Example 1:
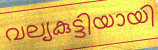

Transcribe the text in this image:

വല്യകുട്ടിയായി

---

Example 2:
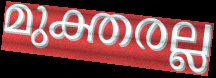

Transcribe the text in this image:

മുക്തരല്ല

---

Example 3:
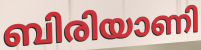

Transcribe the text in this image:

ബിരിയാണി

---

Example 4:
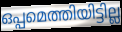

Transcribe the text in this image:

ഒപ്പമെത്തിയിട്ടില്ല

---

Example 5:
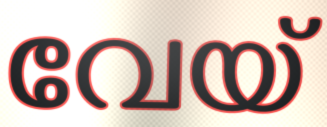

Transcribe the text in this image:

വേയ്